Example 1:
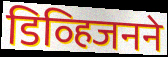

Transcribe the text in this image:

डिव्हिजनने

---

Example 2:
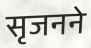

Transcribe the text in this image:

सृजनने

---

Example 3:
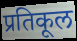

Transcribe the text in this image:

प्रतिकूल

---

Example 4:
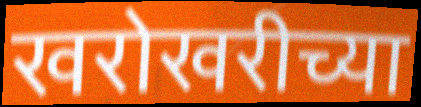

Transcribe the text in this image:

खरोखरीच्या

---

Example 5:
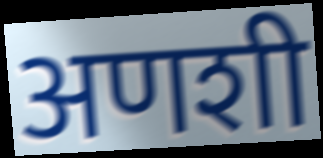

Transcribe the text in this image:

अणशी